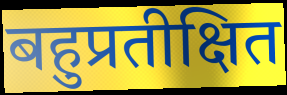
बहुप्रतीक्षित